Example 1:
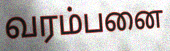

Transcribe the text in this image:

வரம்பனை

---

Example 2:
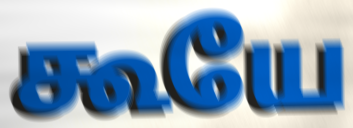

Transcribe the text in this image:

கூயே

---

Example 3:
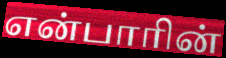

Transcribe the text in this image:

என்பாரின்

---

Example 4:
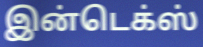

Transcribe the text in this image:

இன்டெக்ஸ்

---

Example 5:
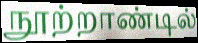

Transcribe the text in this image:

நூற்றாண்டில்